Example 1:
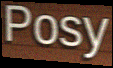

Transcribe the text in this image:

Posy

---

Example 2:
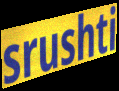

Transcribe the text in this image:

srushti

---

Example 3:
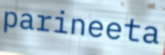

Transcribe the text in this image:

parineeta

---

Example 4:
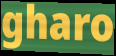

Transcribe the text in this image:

gharo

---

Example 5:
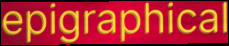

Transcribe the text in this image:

epigraphical